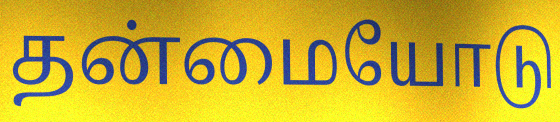
தன்மையோடு